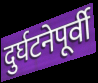
दुर्घटनेपूर्वी